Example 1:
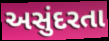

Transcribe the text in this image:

અસુંદરતા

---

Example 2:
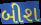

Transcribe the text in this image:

બીશ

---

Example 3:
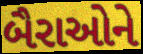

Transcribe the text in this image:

બૈરાઓને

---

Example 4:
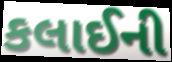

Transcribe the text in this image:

કલાઈની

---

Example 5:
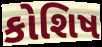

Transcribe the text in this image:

કોશિષ